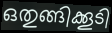
ഒതുങ്ങിക്കൂടി